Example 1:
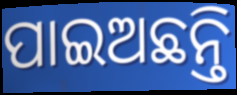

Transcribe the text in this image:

ପାଇଅଛନ୍ତି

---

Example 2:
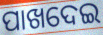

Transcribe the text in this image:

ପାଖଦେଇ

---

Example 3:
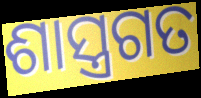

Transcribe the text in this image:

ଶାସ୍ତ୍ରଗତ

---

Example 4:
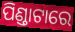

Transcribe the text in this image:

ପିଣ୍ଡାଟାରେ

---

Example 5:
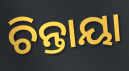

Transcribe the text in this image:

ଚିନ୍ତାୟା